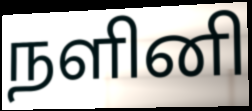
நளினி